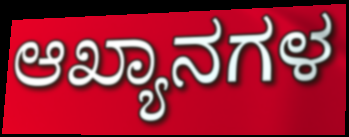
ಆಖ್ಯಾನಗಳ